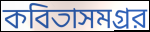
কবিতাসমগ্রর